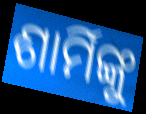
ଶାର୍ମିଙ୍କୁ